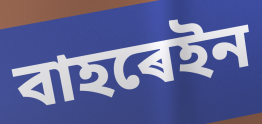
বাহৰেইন